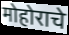
मोहोराचे